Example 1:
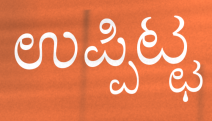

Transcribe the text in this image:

ಉಪ್ಪಿಟ್ಟ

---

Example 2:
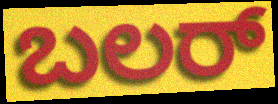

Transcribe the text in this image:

ಬಲರ್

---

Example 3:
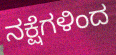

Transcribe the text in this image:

ನಕ್ಷೆಗಳಿಂದ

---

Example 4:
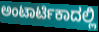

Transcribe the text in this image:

ಅಂಟಾರ್ಟಿಕಾದಲ್ಲಿ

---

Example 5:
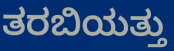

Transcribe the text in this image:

ತರಬಿಯತ್ತು